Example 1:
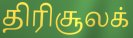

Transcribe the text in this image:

திரிசூலக்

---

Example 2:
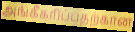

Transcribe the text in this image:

அங்கீகரிப்பதற்கான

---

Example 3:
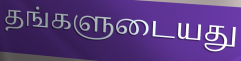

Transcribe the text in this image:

தங்களுடையது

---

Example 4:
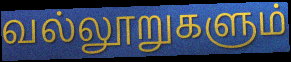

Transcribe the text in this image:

வல்லூறுகளும்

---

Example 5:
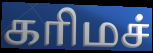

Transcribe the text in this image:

கரிமச்